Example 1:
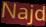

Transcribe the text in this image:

Najd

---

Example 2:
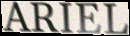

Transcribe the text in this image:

ARIEL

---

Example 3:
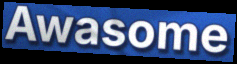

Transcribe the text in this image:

Awasome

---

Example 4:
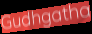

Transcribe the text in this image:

Gudhgatha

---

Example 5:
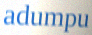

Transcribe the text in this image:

adumpu